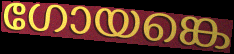
ഗോയങ്കെ